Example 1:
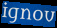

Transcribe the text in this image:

ignou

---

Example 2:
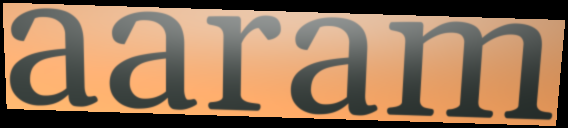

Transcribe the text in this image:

aaram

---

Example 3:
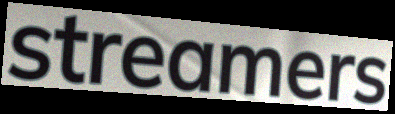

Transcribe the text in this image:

streamers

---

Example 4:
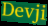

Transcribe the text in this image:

Devji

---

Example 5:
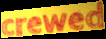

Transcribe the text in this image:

crewed